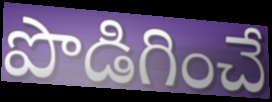
పొడిగించే